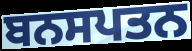
ਬਨਸਪਤਨ